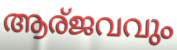
ആര്ജവവും